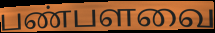
பண்பளவை